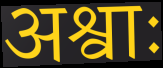
अश्वाः